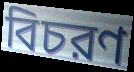
বিচরণ